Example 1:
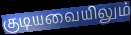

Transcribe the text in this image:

குடியவையிலும்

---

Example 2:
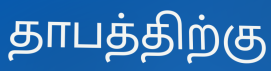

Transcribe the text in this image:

தாபத்திற்கு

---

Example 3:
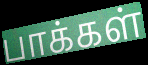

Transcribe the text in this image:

பாக்கள்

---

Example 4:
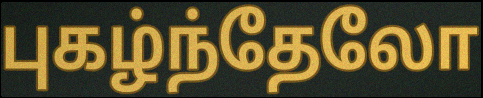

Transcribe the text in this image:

புகழ்ந்தேலோ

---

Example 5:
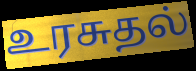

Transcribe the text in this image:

உரசுதல்